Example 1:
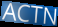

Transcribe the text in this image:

ACTN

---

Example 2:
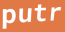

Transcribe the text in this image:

putr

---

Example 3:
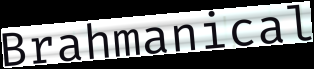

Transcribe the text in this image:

Brahmanical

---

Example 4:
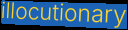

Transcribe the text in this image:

illocutionary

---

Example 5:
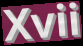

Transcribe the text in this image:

Xvii